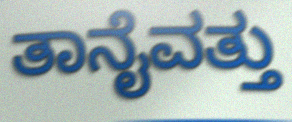
ತಾನೈವತ್ತು